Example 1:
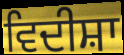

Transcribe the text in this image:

ਵਿਦੀਸ਼ਾ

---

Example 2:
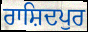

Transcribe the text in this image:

ਰਾਸ਼ਿਦਪੁਰ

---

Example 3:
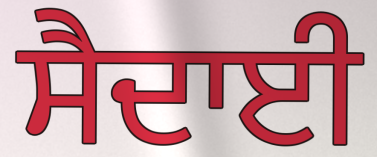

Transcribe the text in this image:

ਸੈਦਾਈ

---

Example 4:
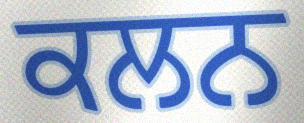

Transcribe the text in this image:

ਕਲਨ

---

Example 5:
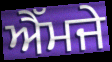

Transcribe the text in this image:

ਐੱਮਜੇ